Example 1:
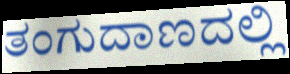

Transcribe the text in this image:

ತಂಗುದಾಣದಲ್ಲಿ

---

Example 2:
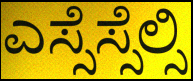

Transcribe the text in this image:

ಎಸ್ಸೆಸ್ಸೆಲ್ಸಿ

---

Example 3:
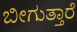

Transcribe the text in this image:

ಬೀಗುತ್ತಾರೆ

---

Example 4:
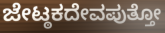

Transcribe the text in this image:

ಜೇಟ್ಠಕದೇವಪುತ್ತೋ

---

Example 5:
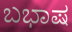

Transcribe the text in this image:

ಬಭಾಷ